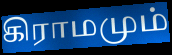
கிராமமும்